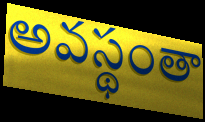
అవస్థంతా